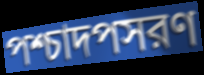
পশ্চাদপসরণ